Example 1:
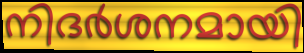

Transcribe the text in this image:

നിദർശനമായി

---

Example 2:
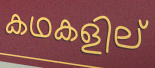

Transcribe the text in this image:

കഥകളില്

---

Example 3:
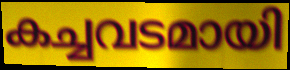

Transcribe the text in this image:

കച്ചവടമായി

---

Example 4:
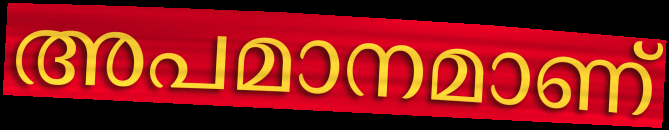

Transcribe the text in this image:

അപമാനമാണ്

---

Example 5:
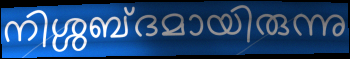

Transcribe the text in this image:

നിശ്ശബ്ദമായിരുന്നു